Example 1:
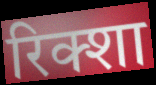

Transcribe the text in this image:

रिक्‍शा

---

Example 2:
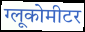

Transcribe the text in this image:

ग्लूकोमीटर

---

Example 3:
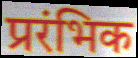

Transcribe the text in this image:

प्ररंभिक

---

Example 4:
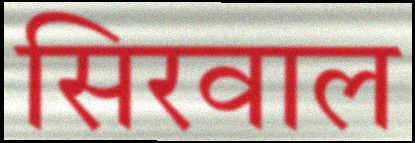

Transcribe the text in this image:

सिरवाल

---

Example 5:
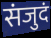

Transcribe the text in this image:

संजुदं